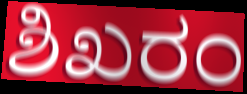
ಶಿಖರಂ